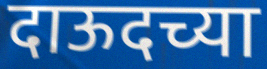
दाऊदच्या